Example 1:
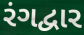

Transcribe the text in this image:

રંગદ્વાર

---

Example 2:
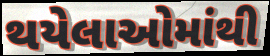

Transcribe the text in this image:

થયેલાઓમાંથી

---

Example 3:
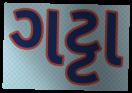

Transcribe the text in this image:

ગટ્ટા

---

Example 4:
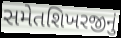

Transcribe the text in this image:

સમેતશિખરજીનું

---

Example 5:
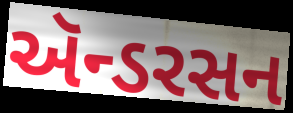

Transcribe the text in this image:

ઍન્ડરસન